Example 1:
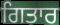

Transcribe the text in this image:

ਗਿਤਾਰ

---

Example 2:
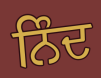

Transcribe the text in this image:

ਨਿੰਦ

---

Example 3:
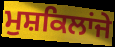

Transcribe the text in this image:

ਮੁਸ਼ਕਿਲਾਂਜੇ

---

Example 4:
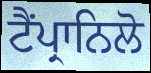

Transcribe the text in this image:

ਟੈਂਪ੍ਰਾਨਿਲੋ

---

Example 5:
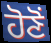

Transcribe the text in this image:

ਹੋਣੋਂ